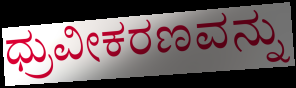
ಧ್ರುವೀಕರಣವನ್ನು